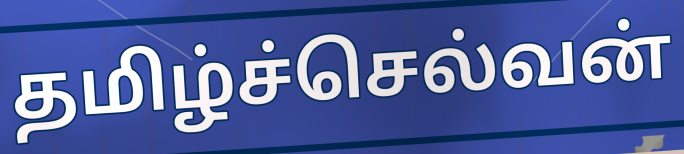
தமிழ்ச்செல்வன்